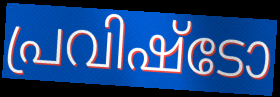
പ്രവിഷ്ടോ